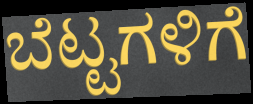
ಬೆಟ್ಟಗಳಿಗೆ